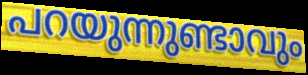
പറയുന്നുണ്ടാവും